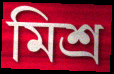
মিশ্ৰ